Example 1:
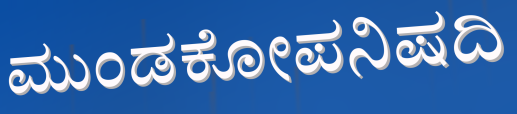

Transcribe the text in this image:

ಮುಂಡಕೋಪನಿಷದಿ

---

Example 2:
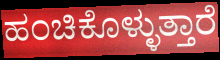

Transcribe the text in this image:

ಹಂಚಿಕೊಳ್ಳುತ್ತಾರೆ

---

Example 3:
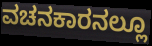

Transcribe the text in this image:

ವಚನಕಾರನಲ್ಲೂ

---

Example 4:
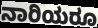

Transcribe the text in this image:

ನಾರಿಯರೂ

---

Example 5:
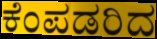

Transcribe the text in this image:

ಕೆಂಪಡರಿದ